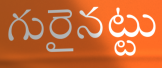
గురైనట్టు